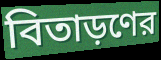
বিতাড়ণের